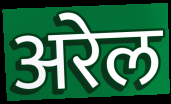
अरेल